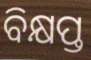
ବିକ୍ଷପ୍ତ